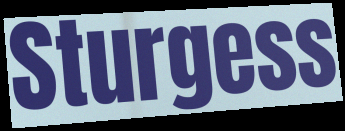
Sturgess